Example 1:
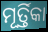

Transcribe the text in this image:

ମୂର୍ତ୍ତିକା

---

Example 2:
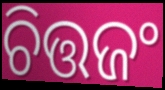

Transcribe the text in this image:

ଚିତ୍ତଜଂ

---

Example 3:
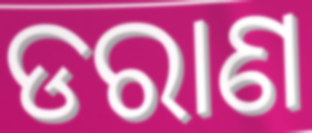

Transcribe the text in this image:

ଡରାଣ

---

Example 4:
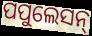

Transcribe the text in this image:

ପପୁଲେସନ୍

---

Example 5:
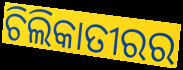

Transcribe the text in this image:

ଚିଲିକାତୀରର